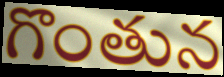
గొంతున